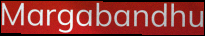
Margabandhu